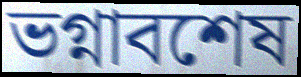
ভগ্নাবশেষ